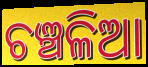
ଚଞ୍ଚଳିଆ